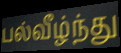
பல்வீழ்ந்து